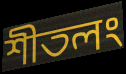
শীতলং